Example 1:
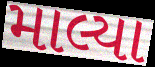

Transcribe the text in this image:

માલ્યા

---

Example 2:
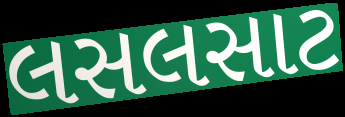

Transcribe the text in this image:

લસલસાટ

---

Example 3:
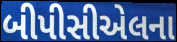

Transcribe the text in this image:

બીપીસીએલના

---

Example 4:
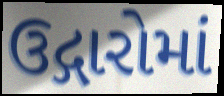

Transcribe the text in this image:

ઉદ્ગારોમાં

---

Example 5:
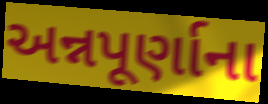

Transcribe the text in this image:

અન્નપૂર્ણાના